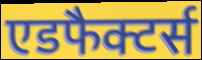
एडफैक्टर्स